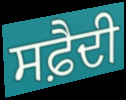
ਸਫ਼ੈਦੀ